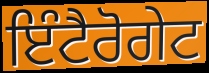
ਇੰਟੈਰੋਗੇਟ